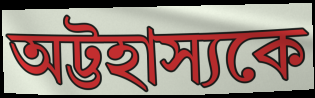
অট্টহাস্যকে